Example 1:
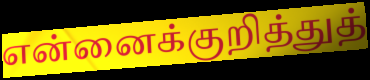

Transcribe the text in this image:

என்னைக்குறித்துத்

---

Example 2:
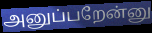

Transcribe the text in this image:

அனுப்பறேன்னு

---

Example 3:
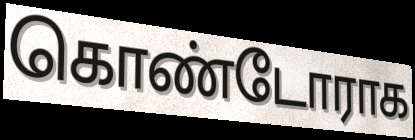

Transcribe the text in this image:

கொண்டோராக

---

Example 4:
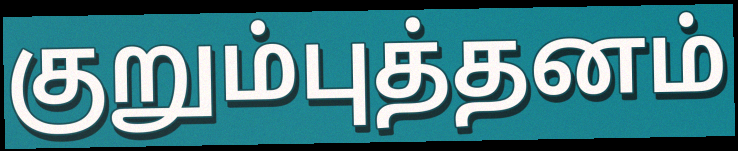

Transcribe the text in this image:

குறும்புத்தனம்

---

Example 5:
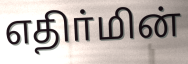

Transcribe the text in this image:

எதிர்மின்